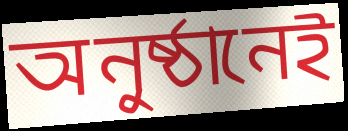
অনুষ্ঠানেই